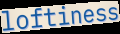
loftiness